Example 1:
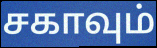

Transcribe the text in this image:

சகாவும்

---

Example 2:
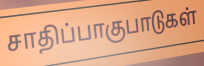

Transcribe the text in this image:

சாதிப்பாகுபாடுகள்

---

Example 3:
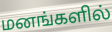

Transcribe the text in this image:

மனங்களில்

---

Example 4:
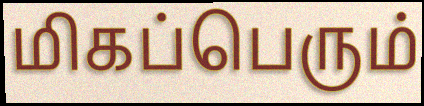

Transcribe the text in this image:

மிகப்பெரும்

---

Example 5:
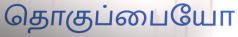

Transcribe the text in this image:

தொகுப்பையோ